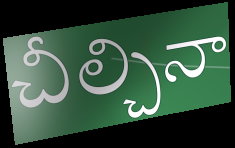
చీల్చినా